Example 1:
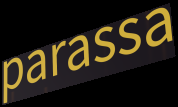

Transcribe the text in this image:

parassa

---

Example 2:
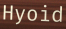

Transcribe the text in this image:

Hyoid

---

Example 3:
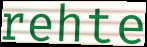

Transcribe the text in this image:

rehte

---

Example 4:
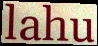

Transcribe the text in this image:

lahu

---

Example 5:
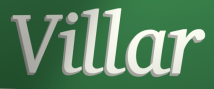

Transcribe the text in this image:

Villar